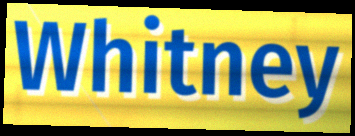
Whitney